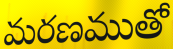
మరణముతో